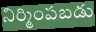
నిర్మింపబడు